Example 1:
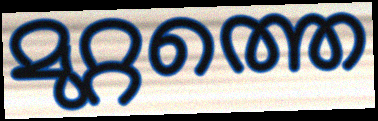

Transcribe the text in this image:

മുറ്റത്തെ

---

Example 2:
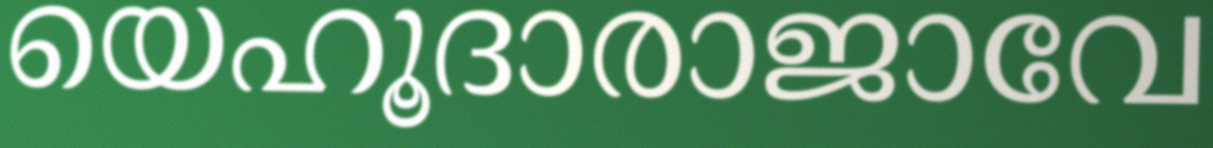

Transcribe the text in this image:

യെഹൂദാരാജാവേ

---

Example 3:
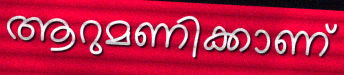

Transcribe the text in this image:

ആറുമണിക്കാണ്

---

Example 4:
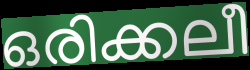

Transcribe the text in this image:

ഒരിക്കലീ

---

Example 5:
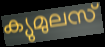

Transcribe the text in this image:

ക്യുമുലസ്